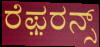
ರೆಫ಼ರನ್ಸ್